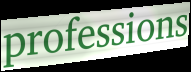
professions